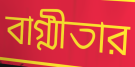
বাগ্মীতার